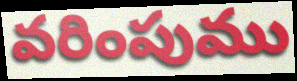
వరింపుము